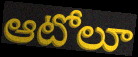
ఆటోలూ